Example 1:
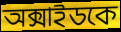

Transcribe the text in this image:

অক্সাইডকে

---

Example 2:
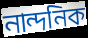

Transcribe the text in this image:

নান্দনিক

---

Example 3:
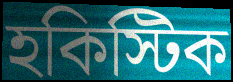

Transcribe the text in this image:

হকিস্টিক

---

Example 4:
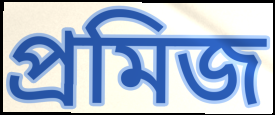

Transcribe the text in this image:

প্রমিজ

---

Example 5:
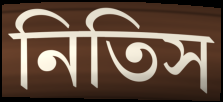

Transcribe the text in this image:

নিতিস